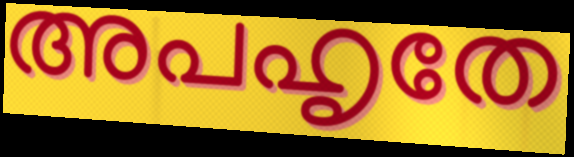
അപഹൃതേ